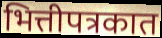
भित्तीपत्रकात